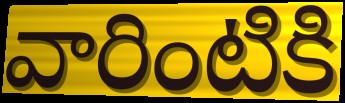
వారింటికి